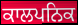
ਕਾਲਪਨਿਕ